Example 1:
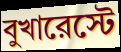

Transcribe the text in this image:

বুখারেস্টে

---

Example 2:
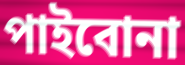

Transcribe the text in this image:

পাইবোনা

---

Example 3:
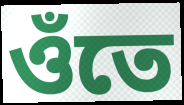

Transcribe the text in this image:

ওঁতে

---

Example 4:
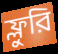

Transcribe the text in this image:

ফ্লুরি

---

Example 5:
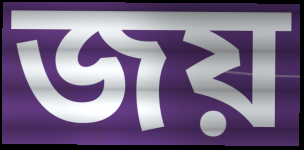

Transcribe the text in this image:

জয়